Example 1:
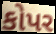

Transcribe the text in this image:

કોપર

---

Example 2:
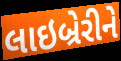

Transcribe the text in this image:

લાઇબ્રેરીને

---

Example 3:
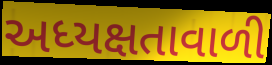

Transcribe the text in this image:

અધ્યક્ષતાવાળી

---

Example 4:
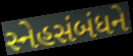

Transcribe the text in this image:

સ્નેહસંબંધને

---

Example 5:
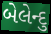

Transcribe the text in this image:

બેલેન્દુ